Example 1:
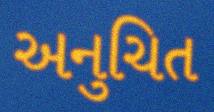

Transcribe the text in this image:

અનુચિત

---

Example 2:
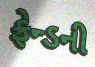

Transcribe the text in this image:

ફ્રેન્ડની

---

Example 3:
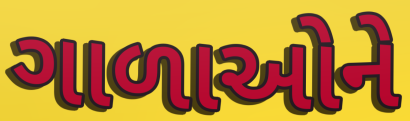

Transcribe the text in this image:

ગાળાઓને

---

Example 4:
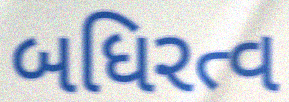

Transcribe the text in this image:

બધિરત્વ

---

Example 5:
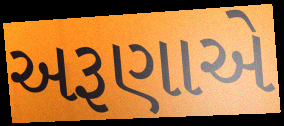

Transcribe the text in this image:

અરૂણાએ